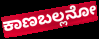
ಕಾಣಬಲ್ಲನೋ